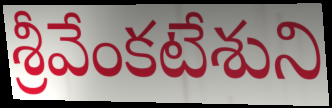
శ్రీవేంకటేశుని